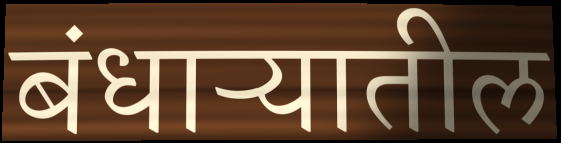
बंधाऱ्यातील